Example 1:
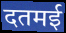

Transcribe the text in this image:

दतमई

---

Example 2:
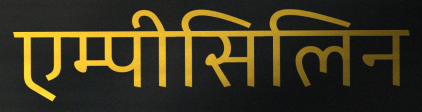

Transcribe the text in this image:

एम्पीसिलिन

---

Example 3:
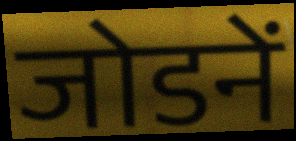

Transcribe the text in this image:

जोडनें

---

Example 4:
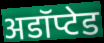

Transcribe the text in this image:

अडॉप्टेड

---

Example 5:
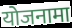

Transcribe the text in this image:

योजनामा